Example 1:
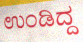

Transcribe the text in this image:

ಉಂಡಿದ್ದ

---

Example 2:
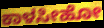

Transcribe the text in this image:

ಕಾಳಸೀಹೋ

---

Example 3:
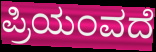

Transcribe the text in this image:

ಪ್ರಿಯಂವದೆ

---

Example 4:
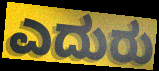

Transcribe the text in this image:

ಎದುರು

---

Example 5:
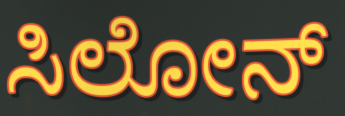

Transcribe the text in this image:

ಸಿಲೋನ್